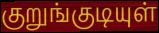
குறுங்குடியுள்